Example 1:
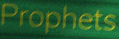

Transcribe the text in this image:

Prophets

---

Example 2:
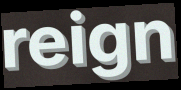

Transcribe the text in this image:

reign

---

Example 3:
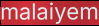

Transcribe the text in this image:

malaiyem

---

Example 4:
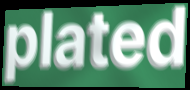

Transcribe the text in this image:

plated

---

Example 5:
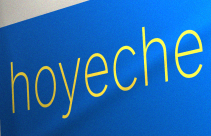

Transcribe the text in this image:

hoyeche